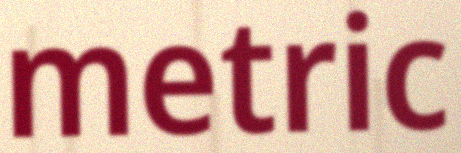
metric